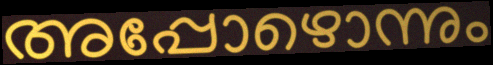
അപ്പോഴൊന്നും